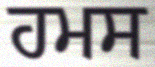
ਹਮਸ